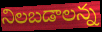
నిలబడాలన్న